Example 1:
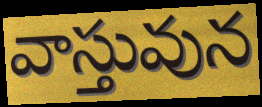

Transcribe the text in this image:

వాస్తువున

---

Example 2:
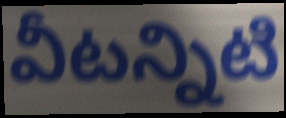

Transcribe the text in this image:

వీటన్నిటి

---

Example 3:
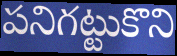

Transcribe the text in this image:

పనిగట్టుకొని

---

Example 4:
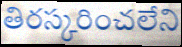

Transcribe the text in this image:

తిరస్కరించలేని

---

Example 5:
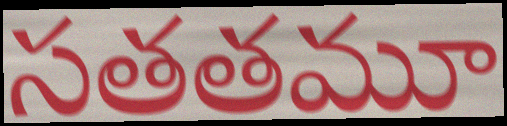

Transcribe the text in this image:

సతతమూ